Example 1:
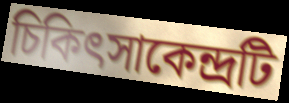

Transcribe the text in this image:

চিকিৎসাকেন্দ্রটি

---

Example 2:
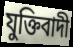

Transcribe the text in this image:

যুক্তিবাদী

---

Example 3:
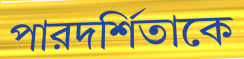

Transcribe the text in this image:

পারদর্শিতাকে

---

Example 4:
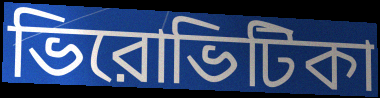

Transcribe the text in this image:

ভিরোভিটিকা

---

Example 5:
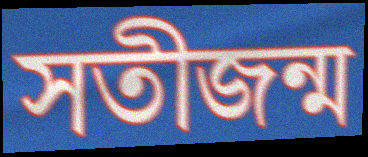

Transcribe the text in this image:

সতীজন্ম